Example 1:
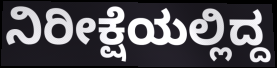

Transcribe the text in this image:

ನಿರೀಕ್ಷೆಯಲ್ಲಿದ್ದ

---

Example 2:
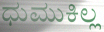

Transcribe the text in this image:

ಧುಮುಕಿಲ್ಲ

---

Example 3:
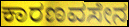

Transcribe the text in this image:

ಕಾರಣವಸೇನ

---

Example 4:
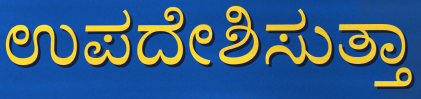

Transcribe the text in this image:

ಉಪದೇಶಿಸುತ್ತಾ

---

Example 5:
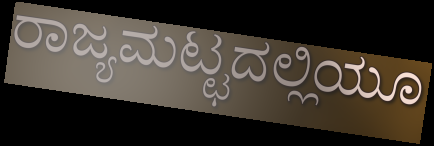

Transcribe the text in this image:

ರಾಜ್ಯಮಟ್ಟದಲ್ಲಿಯೂ